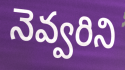
నెవ్వరిని